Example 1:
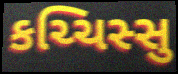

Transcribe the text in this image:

કચ્ચિસ્સુ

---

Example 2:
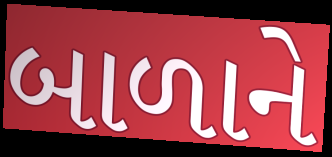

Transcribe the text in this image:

બાળાને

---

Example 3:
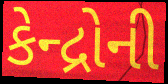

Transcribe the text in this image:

કેન્દ્રોની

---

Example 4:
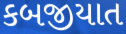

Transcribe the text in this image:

કબજીયાત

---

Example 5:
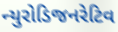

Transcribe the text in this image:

ન્યુરોડિજનરેટિવ